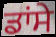
ਡਾਂਸੇ